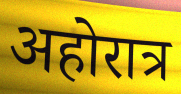
अहोरात्र